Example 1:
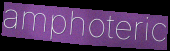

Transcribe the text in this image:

amphoteric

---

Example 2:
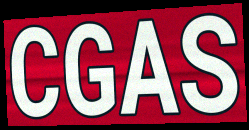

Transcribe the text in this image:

CGAS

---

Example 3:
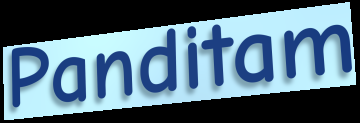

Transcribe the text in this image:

Panditam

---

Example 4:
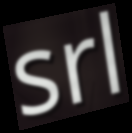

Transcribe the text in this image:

srl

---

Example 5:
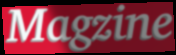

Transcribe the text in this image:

Magzine